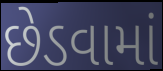
છેડવામાં